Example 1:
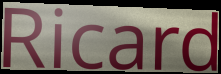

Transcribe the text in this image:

Ricard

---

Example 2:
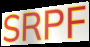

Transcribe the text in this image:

SRPF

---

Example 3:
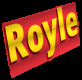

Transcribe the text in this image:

Royle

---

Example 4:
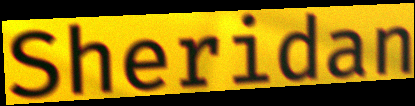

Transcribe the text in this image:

Sheridan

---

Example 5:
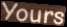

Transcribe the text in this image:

Yours